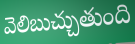
వెలిబుచ్చుతుంది